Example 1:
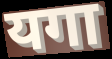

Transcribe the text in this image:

यगा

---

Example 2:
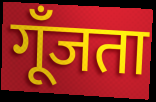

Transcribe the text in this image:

गूँजता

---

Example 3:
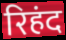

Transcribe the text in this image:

रिहंद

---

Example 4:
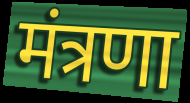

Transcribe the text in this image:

मंत्रणा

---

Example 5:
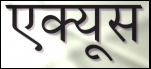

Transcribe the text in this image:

एक्यूस